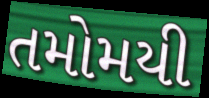
તમોમયી